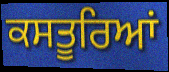
ਕਸਤੂਰਿਆਂ